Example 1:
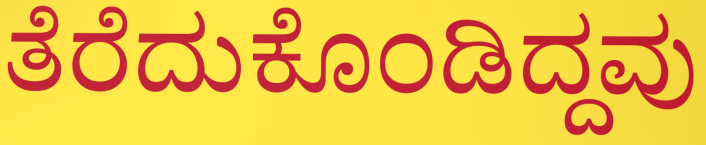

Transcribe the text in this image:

ತೆರೆದುಕೊಂಡಿದ್ದವು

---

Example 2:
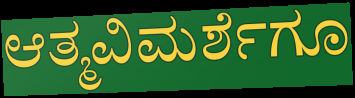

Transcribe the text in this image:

ಆತ್ಮವಿಮರ್ಶೆಗೂ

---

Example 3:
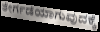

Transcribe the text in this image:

ತೇರ್ಗಡೆಯಾಗುವುದಕ್ಕೆ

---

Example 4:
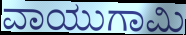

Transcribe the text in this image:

ವಾಯುಗಾಮಿ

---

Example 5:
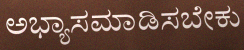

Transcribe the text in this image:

ಅಭ್ಯಾಸಮಾಡಿಸಬೇಕು